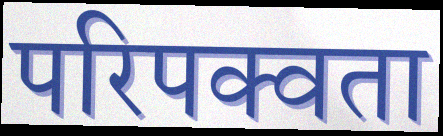
परिपक्‍वता